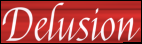
Delusion